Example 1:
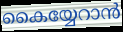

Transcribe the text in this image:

കൈയ്യേറാൻ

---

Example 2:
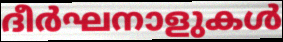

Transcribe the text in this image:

ദീർഘനാളുകൾ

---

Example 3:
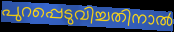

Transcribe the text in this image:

പുറപ്പെടുവിച്ചതിനാൽ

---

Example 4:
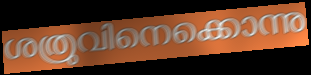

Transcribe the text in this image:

ശത്രുവിനെക്കൊന്നു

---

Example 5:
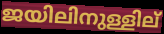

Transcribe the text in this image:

ജയിലിനുള്ളില്